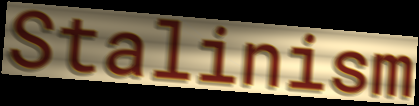
Stalinism